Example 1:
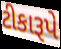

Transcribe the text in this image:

ટીકારૂપે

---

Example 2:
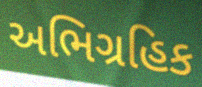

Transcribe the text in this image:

અભિગ્રહિક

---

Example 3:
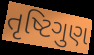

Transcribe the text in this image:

તૃષ્ટિગુણ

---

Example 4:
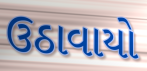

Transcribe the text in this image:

ઉઠાવાયો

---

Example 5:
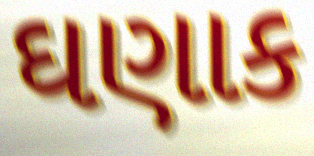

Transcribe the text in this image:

ઘણાક